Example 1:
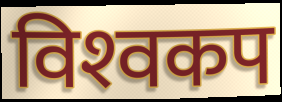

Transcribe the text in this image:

विश्‍वकप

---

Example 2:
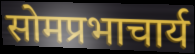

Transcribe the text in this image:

सोमप्रभाचार्य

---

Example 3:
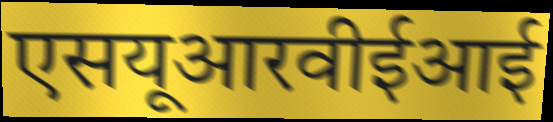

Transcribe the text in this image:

एसयूआरवीईआई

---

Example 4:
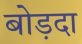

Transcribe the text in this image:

बोड़दा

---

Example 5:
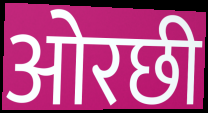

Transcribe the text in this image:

ओरछी